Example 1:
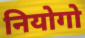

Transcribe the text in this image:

नियोगो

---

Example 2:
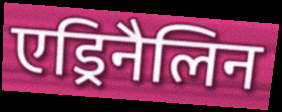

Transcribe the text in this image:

एड्रिनैलिन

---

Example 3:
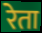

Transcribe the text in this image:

रेता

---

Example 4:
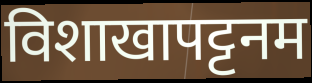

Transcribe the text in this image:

विशाखापट्टनम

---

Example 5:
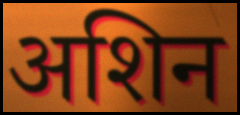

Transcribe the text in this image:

अशिन